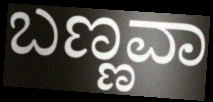
ಬಣ್ಣವಾ